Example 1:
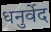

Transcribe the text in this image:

धनुर्वेद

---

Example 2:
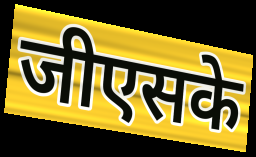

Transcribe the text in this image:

जीएसके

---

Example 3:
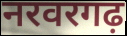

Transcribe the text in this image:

नरवरगढ़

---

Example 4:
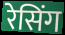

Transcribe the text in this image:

रेसिंग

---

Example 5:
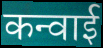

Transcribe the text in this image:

कन्वाई